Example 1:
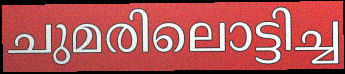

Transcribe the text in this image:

ചുമരിലൊട്ടിച്ച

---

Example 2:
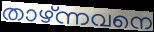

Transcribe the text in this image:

താഴ്ന്നവനെ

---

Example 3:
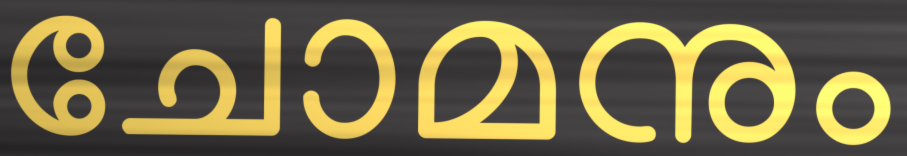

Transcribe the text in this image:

ചോമനും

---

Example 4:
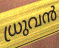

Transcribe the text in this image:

ധ്രുവൻ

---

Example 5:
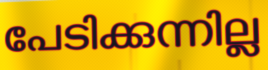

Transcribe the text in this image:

പേടിക്കുന്നില്ല